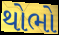
થોભો